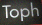
Toph